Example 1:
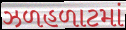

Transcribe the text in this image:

ઝળહળાટમાં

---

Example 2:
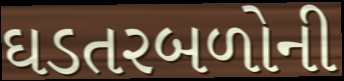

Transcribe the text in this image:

ઘડતરબળોની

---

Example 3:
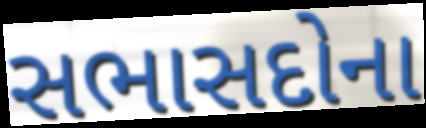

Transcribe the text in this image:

સભાસદોના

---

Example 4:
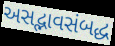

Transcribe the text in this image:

અસદ્ભાવસંબદ્ધ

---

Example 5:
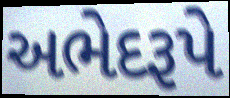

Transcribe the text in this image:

અભેદરૂપે